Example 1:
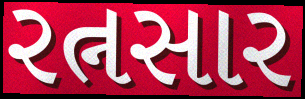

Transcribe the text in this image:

રત્નસાર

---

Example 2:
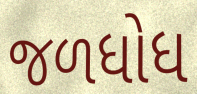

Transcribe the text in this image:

જળધોધ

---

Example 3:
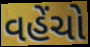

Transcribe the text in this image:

વહેંચો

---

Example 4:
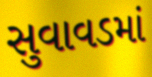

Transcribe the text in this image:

સુવાવડમાં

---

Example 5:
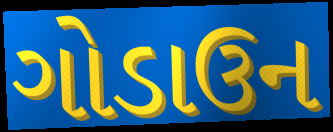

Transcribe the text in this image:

ગોડાઉન